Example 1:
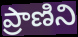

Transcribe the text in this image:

ప్రాణిని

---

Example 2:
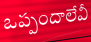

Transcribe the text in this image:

ఒప్పందాలేవీ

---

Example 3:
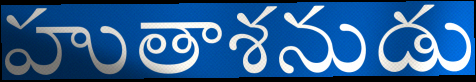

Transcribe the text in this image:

హుతాశనుడు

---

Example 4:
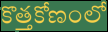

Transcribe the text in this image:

కొత్తకోణంలో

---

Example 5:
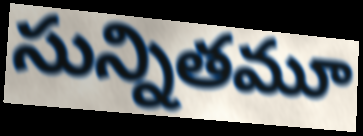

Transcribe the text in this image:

సున్నితమూ